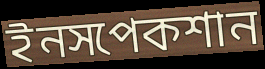
ইনসপেকশান